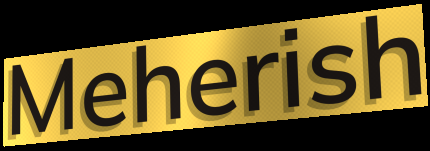
Meherish